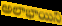
అలాభాయిని